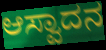
ಆಸ್ವಾದನ